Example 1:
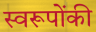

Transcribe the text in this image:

स्वरूपोंकी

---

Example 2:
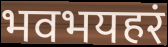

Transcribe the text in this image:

भवभयहरं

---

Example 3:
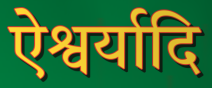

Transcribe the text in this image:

ऐश्वर्यादि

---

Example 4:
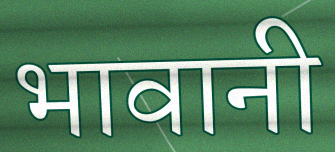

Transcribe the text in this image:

भावानी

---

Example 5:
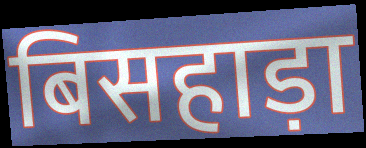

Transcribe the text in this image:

बिसहाड़ा